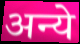
अन्ये